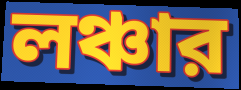
লঞ্চার